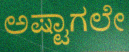
ಅಷ್ಟಾಗಲೇ